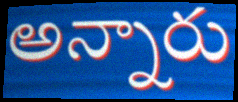
అన్నారు